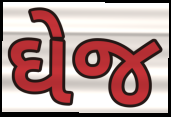
ઘેજ